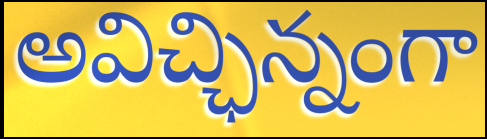
అవిచ్ఛిన్నంగా